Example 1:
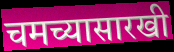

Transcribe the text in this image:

चमच्यासारखी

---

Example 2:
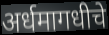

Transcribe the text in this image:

अर्धमागधीचे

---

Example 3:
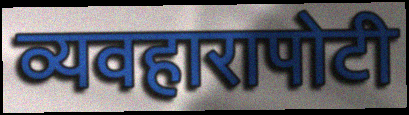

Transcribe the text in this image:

व्यवहारापोटी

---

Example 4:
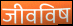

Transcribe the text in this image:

जीवविष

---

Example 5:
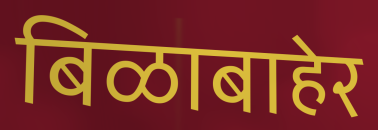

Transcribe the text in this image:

बिळाबाहेर